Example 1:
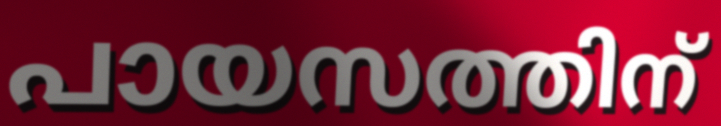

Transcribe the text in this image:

പായസത്തിന്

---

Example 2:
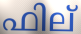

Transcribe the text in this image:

ഫില്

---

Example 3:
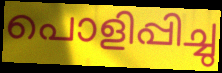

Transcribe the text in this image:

പൊളിപ്പിച്ചു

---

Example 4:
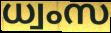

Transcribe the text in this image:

ധ്വംസ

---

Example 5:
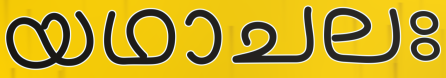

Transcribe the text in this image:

യഥാചലഃ